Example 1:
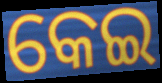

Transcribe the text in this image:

କେଇ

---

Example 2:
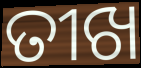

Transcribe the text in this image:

ତୀଖ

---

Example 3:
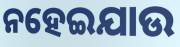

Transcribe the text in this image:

ନହେଇଯାଉ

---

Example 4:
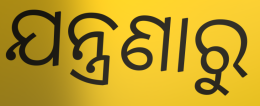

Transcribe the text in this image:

ଯନ୍ତ୍ରଣାରୁ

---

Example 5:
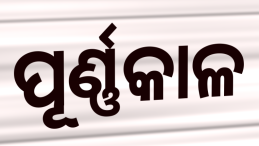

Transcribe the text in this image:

ପୂର୍ଣ୍ଣକାଳ